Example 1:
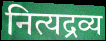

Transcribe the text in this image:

नित्यद्रव्य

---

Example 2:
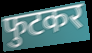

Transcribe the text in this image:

फुटकर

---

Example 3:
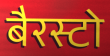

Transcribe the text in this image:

बैरस्टो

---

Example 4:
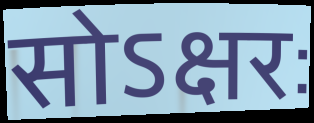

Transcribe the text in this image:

सोऽक्षरः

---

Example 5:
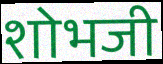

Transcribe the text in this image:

शोभजी